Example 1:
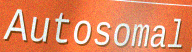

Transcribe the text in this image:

Autosomal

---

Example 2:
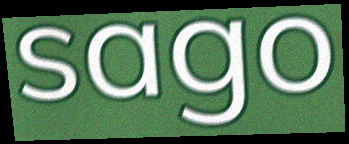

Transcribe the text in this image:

sago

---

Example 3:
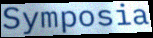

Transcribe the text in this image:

Symposia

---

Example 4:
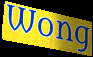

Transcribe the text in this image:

Wong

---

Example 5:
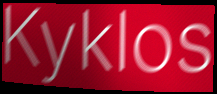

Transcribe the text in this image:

Kyklos